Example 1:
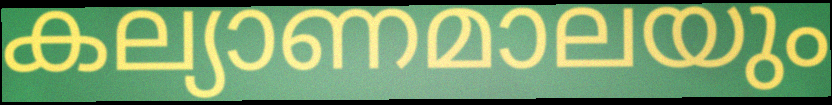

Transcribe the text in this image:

കല്യാണമാലയും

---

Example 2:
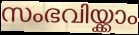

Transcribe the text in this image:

സംഭവിയ്ക്കാം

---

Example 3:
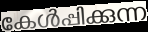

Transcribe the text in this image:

കേൾപ്പിക്കുന്ന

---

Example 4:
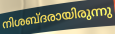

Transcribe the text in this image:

നിശബ്ദരായിരുന്നു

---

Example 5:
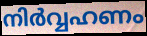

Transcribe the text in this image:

നിർവ്വഹണം